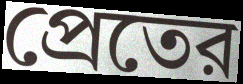
প্রেতের